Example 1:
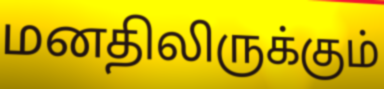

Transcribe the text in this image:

மனதிலிருக்கும்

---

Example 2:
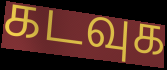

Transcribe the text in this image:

கடவுக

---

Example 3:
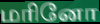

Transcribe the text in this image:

மரினோ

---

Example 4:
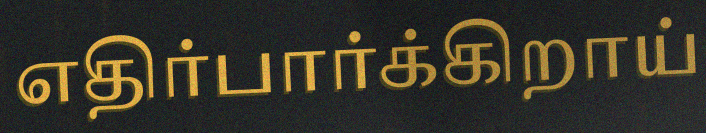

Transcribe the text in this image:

எதிர்பார்க்கிறாய்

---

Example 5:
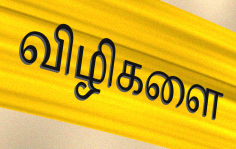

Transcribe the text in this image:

விழிகளை